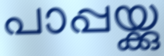
പാപ്പയ്ക്കു